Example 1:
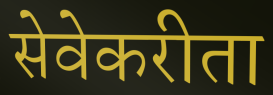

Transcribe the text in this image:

सेवेकरीता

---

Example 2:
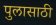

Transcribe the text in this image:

पुलासाठी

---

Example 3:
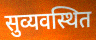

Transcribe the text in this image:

सुव्यवस्थित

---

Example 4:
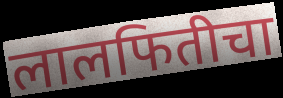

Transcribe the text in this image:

लालफितीचा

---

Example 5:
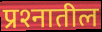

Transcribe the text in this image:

प्रश्नातील